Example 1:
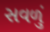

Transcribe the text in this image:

સવળું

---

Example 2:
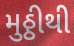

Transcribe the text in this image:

મુઠ્ઠીથી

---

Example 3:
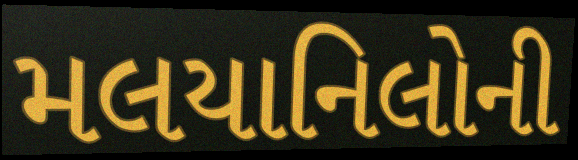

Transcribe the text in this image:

મલયાનિલોની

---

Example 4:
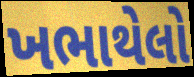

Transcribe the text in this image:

ખભાથેલો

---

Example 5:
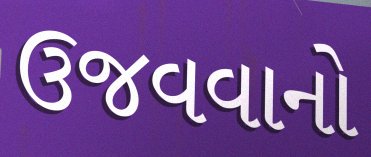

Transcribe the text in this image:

ઉજવવાનો